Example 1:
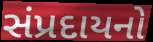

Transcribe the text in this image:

સંપ્રદાયનો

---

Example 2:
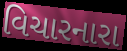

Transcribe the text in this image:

વિચારનારા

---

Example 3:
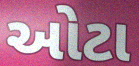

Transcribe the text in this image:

ઓટા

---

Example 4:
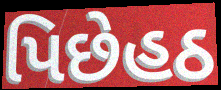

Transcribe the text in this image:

પિછેહઠ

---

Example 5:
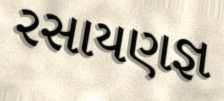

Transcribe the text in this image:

રસાયણજ્ઞ